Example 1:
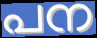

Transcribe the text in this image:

പന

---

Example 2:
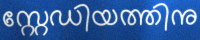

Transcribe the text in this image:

സ്റ്റേഡിയത്തിനു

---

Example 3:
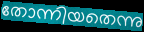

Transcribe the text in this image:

തോന്നിയതെന്നു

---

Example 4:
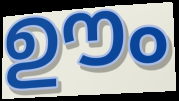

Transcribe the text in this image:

ഊം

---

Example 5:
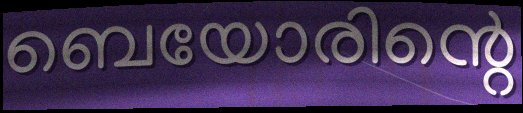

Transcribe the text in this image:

ബെയോരിന്റെ